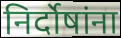
निर्दोषांना